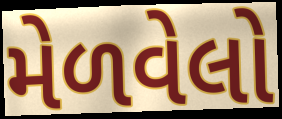
મેળવેલો